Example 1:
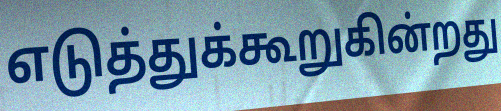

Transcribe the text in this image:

எடுத்துக்கூறுகின்றது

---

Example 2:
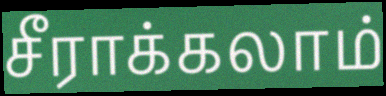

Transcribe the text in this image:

சீராக்கலாம்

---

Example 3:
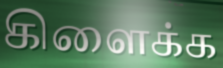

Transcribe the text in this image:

கிளைக்க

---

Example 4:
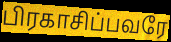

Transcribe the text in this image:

பிரகாசிப்பவரே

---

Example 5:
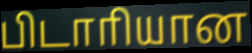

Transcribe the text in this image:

பிடாரியான